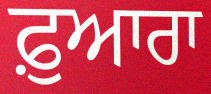
ਫ਼ੁਆਰਾ